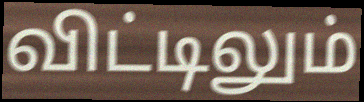
விட்டிலும்